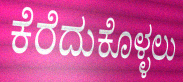
ಕೆರೆದುಕೊಳ್ಳಲು